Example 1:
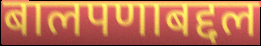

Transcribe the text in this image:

बालपणाबद्दल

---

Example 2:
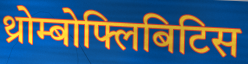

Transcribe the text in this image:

थ्रोम्बोफ्लिबिटिस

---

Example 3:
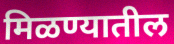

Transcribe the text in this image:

मिळण्यातील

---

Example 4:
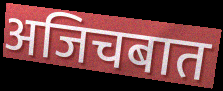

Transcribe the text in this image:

अजिचबात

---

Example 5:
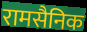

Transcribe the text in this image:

रामसैनिक